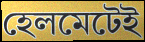
হেলমেটেই